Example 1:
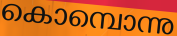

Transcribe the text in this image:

കൊമ്പൊന്നു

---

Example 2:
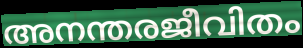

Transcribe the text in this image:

അനന്തരജീവിതം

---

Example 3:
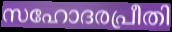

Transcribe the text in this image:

സഹോദരപ്രീതി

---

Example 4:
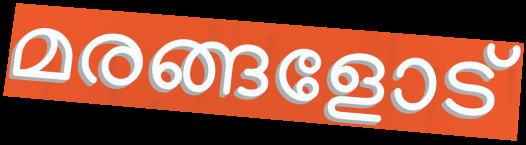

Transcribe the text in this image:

മരങ്ങളോട്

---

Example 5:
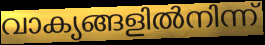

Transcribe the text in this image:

വാക്യങ്ങളിൽനിന്ന്